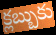
క్లబ్బుకు